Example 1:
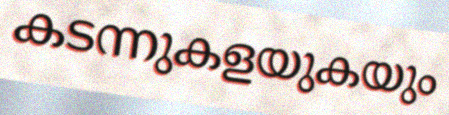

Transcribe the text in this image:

കടന്നുകളയുകയും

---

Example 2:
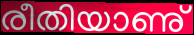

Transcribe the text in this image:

രീതിയാണു്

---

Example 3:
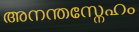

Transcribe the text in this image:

അനന്തസ്നേഹം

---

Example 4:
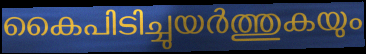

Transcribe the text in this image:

കൈപിടിച്ചുയർത്തുകയും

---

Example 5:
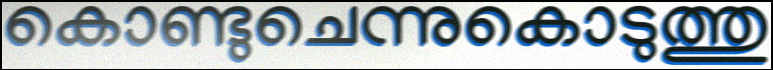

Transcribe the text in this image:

കൊണ്ടുചെന്നുകൊടുത്തു